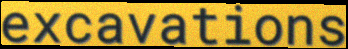
excavations